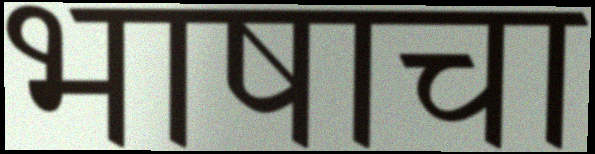
भाषाचा